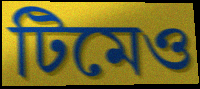
টিমেও